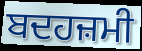
ਬਦਹਜ਼ਮੀ